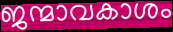
ജന്മാവകാശം